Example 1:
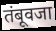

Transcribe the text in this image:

तंबूवजा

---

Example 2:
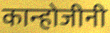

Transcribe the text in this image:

कान्होजीनी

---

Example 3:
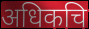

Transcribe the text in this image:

अधिकचि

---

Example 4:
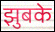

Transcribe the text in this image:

झुबके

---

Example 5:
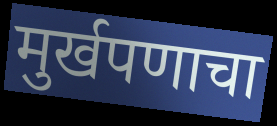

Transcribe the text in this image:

मुर्खपणाचा